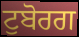
ਟੁਬੋਰਗ